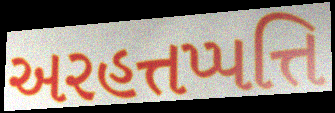
અરહત્તપ્પત્તિ